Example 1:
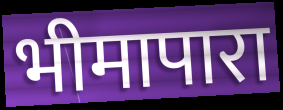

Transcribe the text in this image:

भीमापारा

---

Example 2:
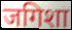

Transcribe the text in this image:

जगिशा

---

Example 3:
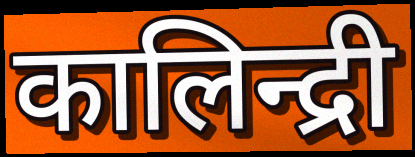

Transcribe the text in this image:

कालिन्द्री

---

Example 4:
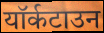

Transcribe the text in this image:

यॉर्कटाउन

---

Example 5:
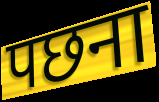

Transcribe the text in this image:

पछना